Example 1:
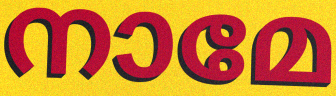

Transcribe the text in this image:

നാമേ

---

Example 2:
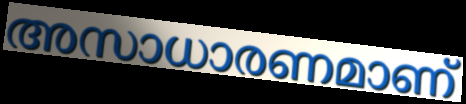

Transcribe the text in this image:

അസാധാരണമാണ്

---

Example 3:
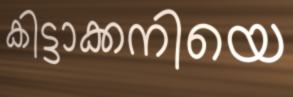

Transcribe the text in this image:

കിട്ടാക്കനിയെ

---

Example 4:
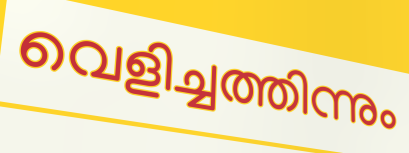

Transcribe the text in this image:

വെളിച്ചത്തിന്നും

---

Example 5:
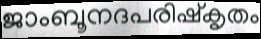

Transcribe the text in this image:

ജാംബൂനദപരിഷ്കൃതം